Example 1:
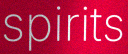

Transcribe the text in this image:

spirits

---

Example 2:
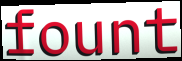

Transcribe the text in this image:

fount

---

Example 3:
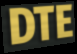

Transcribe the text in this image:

DTE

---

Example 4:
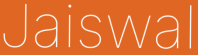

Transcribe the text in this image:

Jaiswal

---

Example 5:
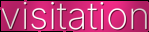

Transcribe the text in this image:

visitation